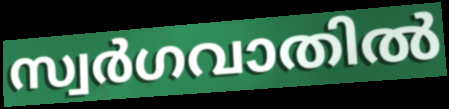
സ്വർഗവാതിൽ